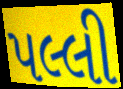
પલ્લી